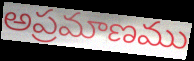
అప్రమాణము